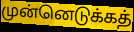
முன்னெடுக்கத்